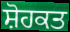
ਸ਼ੋਹਕਤ